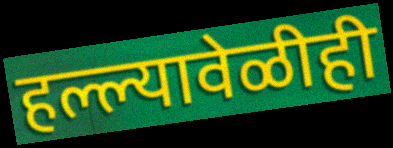
हल्ल्यावेळीही